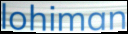
lohiman